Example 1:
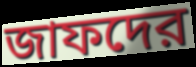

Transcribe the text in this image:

জাফদের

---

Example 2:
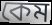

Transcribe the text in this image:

কেম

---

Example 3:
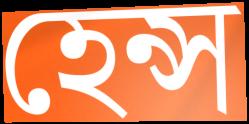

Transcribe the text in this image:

হেন্স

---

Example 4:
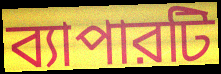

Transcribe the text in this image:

ব্যাপারটি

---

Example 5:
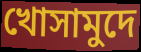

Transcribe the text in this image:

খোসামুদে